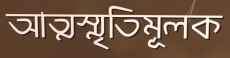
আত্মস্মৃতিমূলক